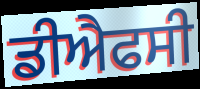
ਡੀਐਫਸੀ